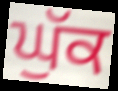
ਘੁੱਕ